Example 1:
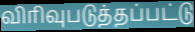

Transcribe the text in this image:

விரிவுபடுத்தப்பட்டு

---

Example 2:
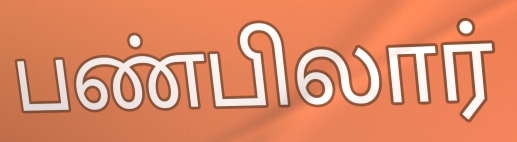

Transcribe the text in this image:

பண்பிலார்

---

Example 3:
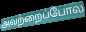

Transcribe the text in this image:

அவற்றைப்போல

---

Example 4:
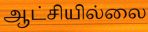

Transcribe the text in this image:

ஆட்சியில்லை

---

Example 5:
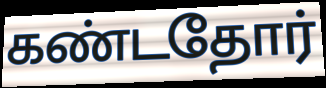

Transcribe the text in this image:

கண்டதோர்